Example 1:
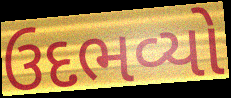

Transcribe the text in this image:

ઉદભવ્યો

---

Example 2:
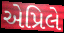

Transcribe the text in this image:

એપ્રિલે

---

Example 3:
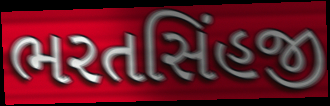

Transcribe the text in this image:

ભરતસિંહજી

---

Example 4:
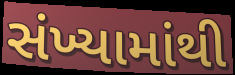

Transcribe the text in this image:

સંખ્યામાંથી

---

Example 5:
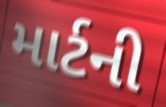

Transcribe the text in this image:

માર્ટની